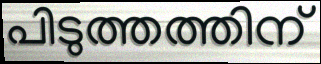
പിടുത്തത്തിന്